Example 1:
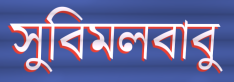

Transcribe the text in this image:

সুবিমলবাবু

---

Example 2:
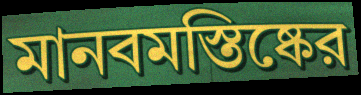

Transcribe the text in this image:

মানবমস্তিষ্কের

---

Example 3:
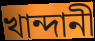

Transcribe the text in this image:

খান্দানী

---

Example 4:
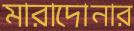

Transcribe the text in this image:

মারাদোনার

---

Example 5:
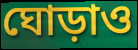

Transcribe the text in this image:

ঘোড়াও